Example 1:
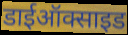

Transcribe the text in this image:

डाईऑक्साइड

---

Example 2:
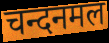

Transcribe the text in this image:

चन्दनमल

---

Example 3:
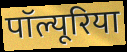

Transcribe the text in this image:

पॉल्यूरिया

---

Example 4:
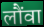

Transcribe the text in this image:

लौंवा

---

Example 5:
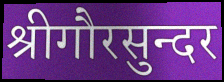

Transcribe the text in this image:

श्रीगौरसुन्दर